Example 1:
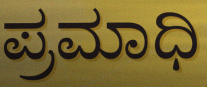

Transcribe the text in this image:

ಪ್ರಮಾಧಿ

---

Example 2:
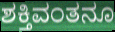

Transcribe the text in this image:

ಶಕ್ತಿವಂತನೂ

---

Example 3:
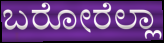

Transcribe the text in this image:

ಬರೋರೆಲ್ಲಾ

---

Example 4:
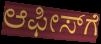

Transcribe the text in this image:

ಆಫೀಸ್‍ಗೆ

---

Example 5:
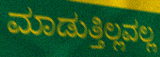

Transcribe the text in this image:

ಮಾಡುತ್ತಿಲ್ಲವಲ್ಲ